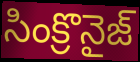
సింక్రొనైజ్